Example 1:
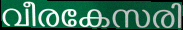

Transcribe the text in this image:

വീരകേസരി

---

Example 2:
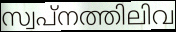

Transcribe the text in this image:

സ്വപ്നത്തിലിവ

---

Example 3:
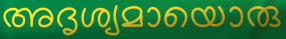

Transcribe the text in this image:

അദൃശ്യമായൊരു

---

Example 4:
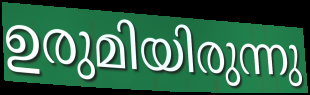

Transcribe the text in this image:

ഉരുമിയിരുന്നു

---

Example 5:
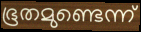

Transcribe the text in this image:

ഭൂതമുണ്ടെന്ന്